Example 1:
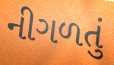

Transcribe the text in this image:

નીગળતું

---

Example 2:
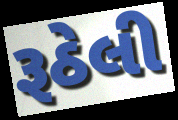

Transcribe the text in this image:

રૂઠેલી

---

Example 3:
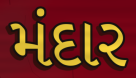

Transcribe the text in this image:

મંદાર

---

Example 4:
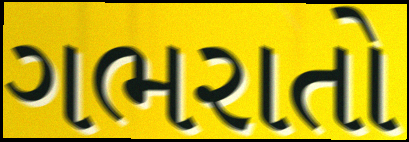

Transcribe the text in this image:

ગભરાતો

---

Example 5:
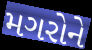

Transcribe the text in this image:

મગરોને